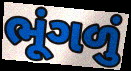
ભૂંગળું